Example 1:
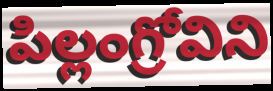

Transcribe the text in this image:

పిల్లంగ్రోవిని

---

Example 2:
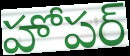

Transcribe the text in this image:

హోపర్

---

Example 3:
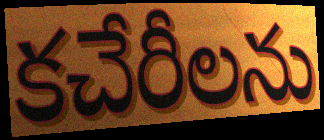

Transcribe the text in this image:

కచేరీలను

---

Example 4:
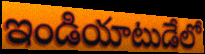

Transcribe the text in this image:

ఇండియాటుడేలో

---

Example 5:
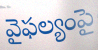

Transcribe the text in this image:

వైఫల్యంపై